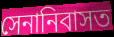
সেনানিবাসত